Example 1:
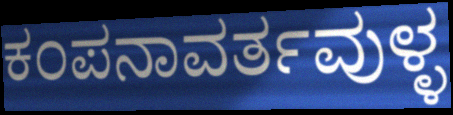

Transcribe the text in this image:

ಕಂಪನಾವರ್ತವುಳ್ಳ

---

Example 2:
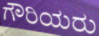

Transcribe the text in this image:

ಗೌರಿಯರು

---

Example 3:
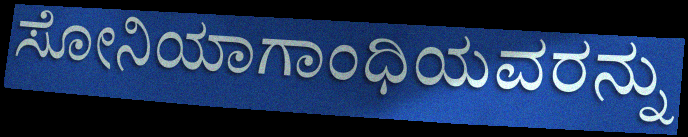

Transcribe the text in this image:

ಸೋನಿಯಾಗಾಂಧಿಯವರನ್ನು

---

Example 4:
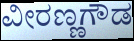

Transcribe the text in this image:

ವೀರಣ್ಣಗೌಡ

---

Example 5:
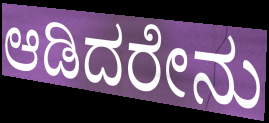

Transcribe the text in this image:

ಆಡಿದರೇನು